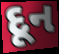
દૂન